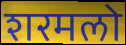
शरमलो